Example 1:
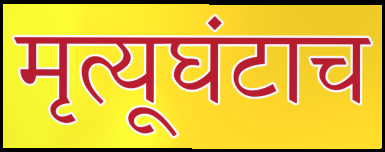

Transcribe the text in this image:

मृत्यूघंटाच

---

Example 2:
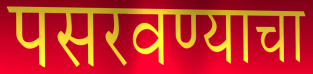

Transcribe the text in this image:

पसरवण्याचा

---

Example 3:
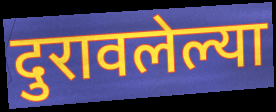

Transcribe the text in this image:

दुरावलेल्या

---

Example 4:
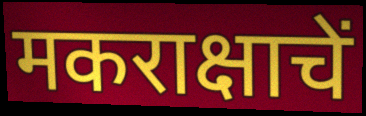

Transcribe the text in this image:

मकराक्षाचें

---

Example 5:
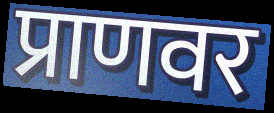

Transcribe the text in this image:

प्राणवर